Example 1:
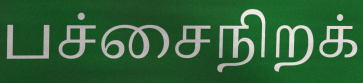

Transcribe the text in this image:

பச்சைநிறக்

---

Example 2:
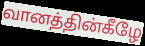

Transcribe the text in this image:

வானத்தின்கீழே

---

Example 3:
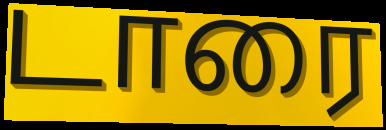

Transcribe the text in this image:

டாரை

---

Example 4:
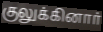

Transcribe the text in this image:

குலுக்கினார்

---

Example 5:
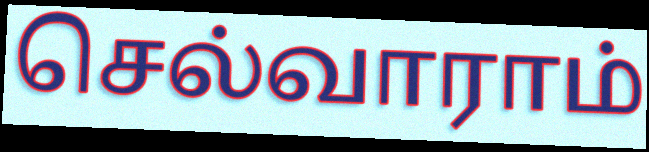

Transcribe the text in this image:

செல்வாராம்